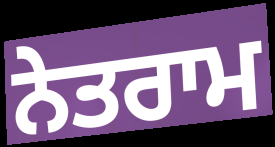
ਨੇਤਰਾਮ